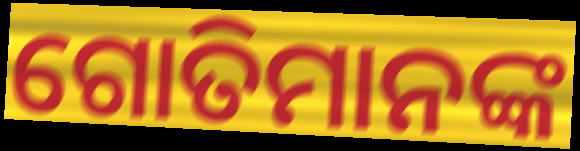
ଗୋତିମାନଙ୍କ